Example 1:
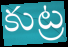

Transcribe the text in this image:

కుట్ర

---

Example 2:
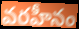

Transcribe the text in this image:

వరహీనం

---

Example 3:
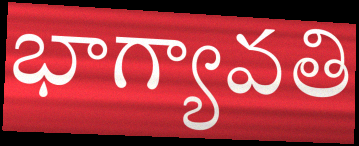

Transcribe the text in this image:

భాగ్యావతి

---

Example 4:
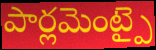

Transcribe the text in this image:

పార్లమెంట్పై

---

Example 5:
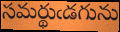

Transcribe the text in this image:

సమర్థుఁడగును